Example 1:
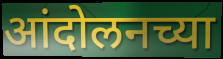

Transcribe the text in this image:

आंदोलनच्या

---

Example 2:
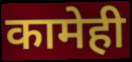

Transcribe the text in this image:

कामेही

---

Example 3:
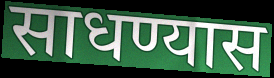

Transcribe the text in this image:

साधण्यास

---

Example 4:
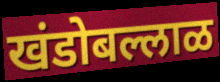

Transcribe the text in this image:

खंडोबल्लाळ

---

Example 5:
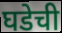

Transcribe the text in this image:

घडेची